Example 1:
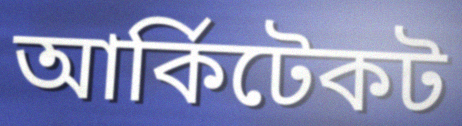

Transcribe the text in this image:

আর্কিটেকট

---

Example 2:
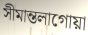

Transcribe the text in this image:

সীমান্তলাগোয়া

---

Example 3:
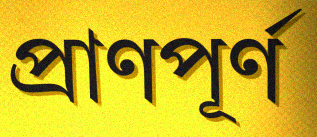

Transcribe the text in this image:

প্রাণপূর্ণ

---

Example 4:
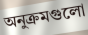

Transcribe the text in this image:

অনুক্রমগুলো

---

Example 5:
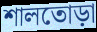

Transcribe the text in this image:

শালতোড়া